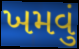
ખમવું